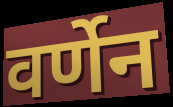
वर्णेन